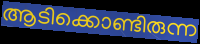
ആടിക്കൊണ്ടിരുന്ന